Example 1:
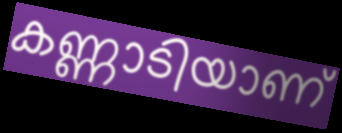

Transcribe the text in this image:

കണ്ണാടിയാണ്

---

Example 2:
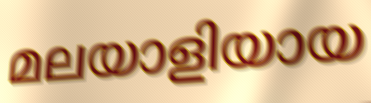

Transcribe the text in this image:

മലയാളിയായ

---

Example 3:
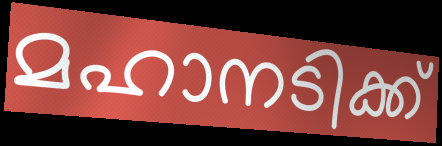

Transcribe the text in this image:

മഹാനടിക്ക്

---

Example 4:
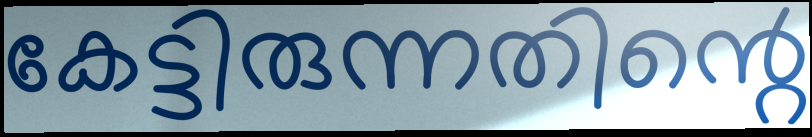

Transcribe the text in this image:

കേട്ടിരുന്നതിന്റെ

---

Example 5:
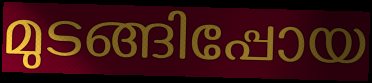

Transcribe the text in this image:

മുടങ്ങിപ്പോയ